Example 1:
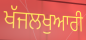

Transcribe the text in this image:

ਖੱਜਲਖੁਆਰੀ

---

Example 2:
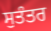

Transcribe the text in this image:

ਸੁਤੰਤਰ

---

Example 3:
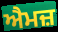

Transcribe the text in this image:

ਐਮਜ਼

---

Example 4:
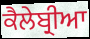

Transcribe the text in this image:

ਕੈਲੇਬ੍ਰੀਆ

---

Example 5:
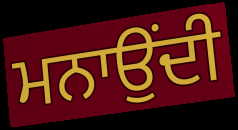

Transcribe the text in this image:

ਮਨਾਉਂਦੀ